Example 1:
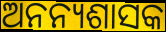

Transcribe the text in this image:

ଅନନ୍ୟଶାସକ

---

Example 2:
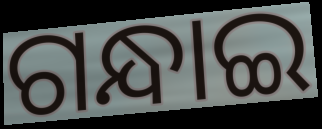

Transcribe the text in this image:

ଗନ୍ଧାଇ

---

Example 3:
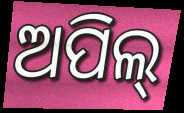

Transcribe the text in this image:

ଅପିଲ୍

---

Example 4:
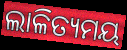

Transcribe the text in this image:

ଲାଳିତ୍ୟମୟ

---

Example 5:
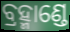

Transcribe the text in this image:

ବ୍ରହ୍ମାଣ୍ଡେ